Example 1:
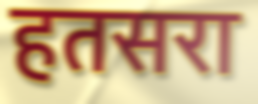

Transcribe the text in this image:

हतसरा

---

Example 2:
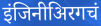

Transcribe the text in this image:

इंजिनीअिरगचं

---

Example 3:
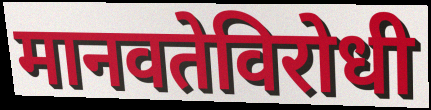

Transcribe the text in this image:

मानवतेविरोधी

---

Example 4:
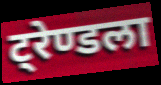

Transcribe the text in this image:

ट्रेण्डला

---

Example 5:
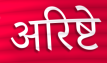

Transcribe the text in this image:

अरिष्टे